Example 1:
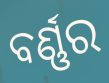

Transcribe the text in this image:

ବର୍ଣ୍ଣର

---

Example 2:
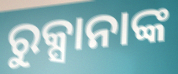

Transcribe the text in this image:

ରୁକ୍ସାନାଙ୍କ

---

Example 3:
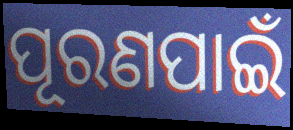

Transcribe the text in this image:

ପୂରଣପାଇଁ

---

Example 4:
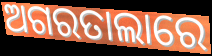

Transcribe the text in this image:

ଅଗରତାଲାରେ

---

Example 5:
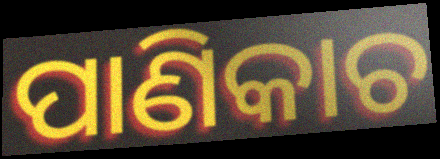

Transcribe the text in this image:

ପାଣିକାଚ